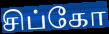
சிப்கோ